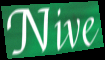
Nive